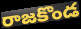
రాజకొండ